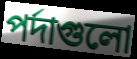
পর্দাগুলো